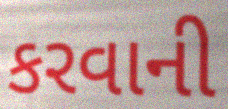
કરવાની